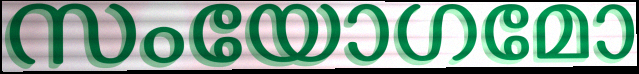
സംയോഗമോ